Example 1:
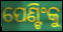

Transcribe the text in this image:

ପେଣ୍ଟିଂକୁ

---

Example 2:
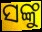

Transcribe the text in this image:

ସଙ୍କୁ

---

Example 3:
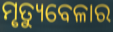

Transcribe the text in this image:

ମୃତ୍ୟୁବେଳାର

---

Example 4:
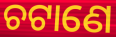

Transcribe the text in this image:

ଚଟାଣେ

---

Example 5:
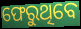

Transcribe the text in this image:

ଫେରୁଥିବେ